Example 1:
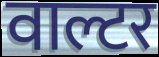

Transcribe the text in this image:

वाल्टर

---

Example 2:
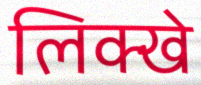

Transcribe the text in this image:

लिक्खे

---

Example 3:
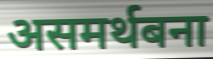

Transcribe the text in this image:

असमर्थबना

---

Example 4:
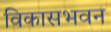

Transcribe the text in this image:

विकासभवन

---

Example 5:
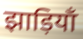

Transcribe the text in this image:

झाड़ियाँ